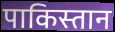
पाकिस्तान